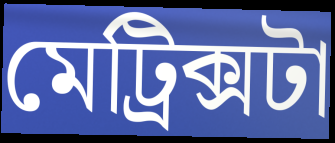
মেট্রিক্সটা